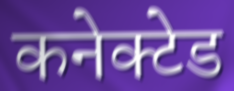
कनेक्टेड